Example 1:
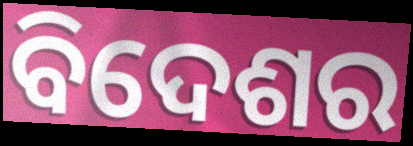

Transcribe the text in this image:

ବିଦେଶର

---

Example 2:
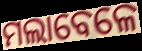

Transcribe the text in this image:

ମଲାବେଳେ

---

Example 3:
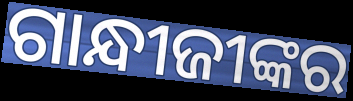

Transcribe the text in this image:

ଗାନ୍ଧୀଜୀଙ୍କର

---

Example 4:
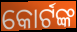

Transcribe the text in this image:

କୋର୍ଟଙ୍କ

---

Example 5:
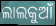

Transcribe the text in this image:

ଲାଲକୁଆଁ